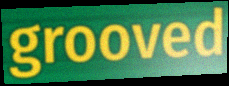
grooved